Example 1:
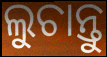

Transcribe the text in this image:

ଲୁଚାନ୍ତୁ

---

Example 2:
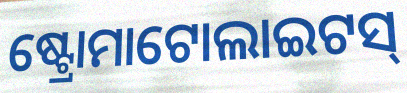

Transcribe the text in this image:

ଷ୍ଟ୍ରୋମାଟୋଲାଇଟସ୍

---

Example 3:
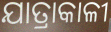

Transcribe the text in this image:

ଯାତ୍ରାକାଳୀ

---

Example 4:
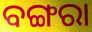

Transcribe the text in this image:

ବଙ୍ଗରା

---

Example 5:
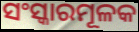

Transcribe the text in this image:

ସଂସ୍କାରମୂଳକ